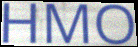
HMO